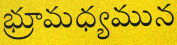
భ్రూమధ్యమున